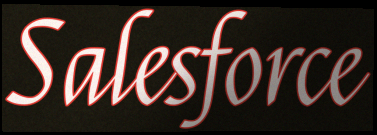
Salesforce